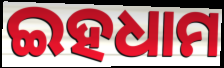
ଇହଧାମ